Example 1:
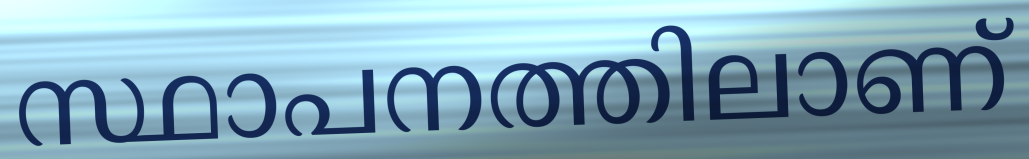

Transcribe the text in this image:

സ്ഥാപനത്തിലാണ്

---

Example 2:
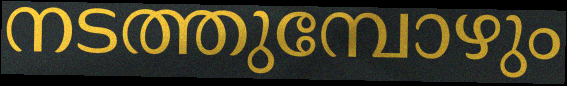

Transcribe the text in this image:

നടത്തുമ്പോഴും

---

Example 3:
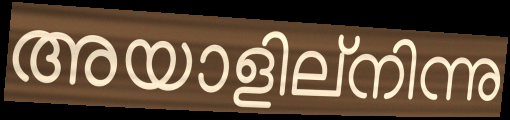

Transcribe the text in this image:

അയാളില്നിന്നു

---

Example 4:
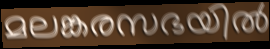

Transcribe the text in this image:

മലങ്കരസഭയിൽ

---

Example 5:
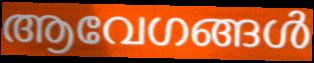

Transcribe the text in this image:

ആവേഗങ്ങൾ